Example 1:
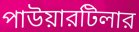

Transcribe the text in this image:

পাউয়ারটিলার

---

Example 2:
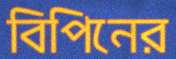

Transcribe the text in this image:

বিপিনের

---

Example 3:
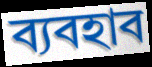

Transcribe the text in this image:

ব্যবহাব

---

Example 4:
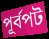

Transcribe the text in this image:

পূর্বপট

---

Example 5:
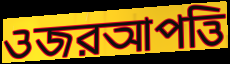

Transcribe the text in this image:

ওজরআপত্তি